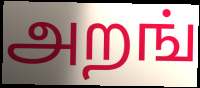
அறங்